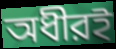
অধীরই